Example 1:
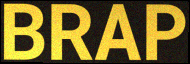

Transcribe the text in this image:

BRAP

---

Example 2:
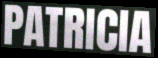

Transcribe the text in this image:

PATRICIA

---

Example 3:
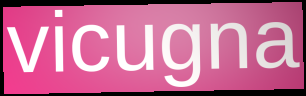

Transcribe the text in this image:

vicugna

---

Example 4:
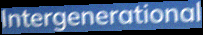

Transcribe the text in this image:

Intergenerational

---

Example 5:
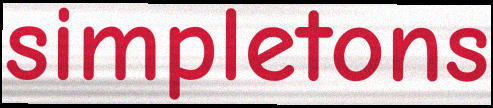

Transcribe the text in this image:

simpletons